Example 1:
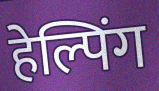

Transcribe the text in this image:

हेल्पिंग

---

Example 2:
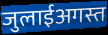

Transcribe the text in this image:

जुलाईअगस्त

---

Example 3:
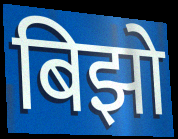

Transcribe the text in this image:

बिझो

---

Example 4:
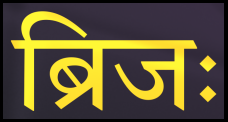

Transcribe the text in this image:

ब्रिजः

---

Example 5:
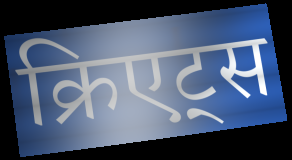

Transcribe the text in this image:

क्रिएट्स